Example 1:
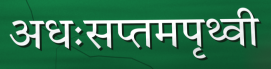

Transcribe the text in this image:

अधःसप्तमपृथ्वी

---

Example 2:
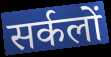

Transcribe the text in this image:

सर्कलों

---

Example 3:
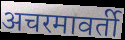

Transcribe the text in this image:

अचरमावर्ती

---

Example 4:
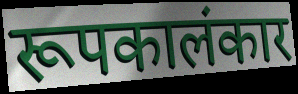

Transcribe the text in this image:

रूपकालंकार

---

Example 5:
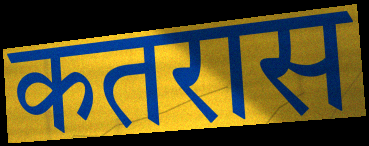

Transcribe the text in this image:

कतरास